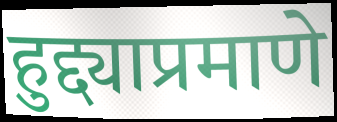
हुद्द्याप्रमाणे